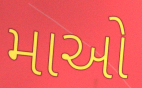
માઓ